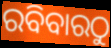
ରବିବାରଠୁ